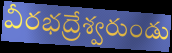
వీరభద్రేశ్వరుండు